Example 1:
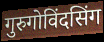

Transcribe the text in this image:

गुरुगोविंदसिंग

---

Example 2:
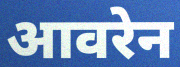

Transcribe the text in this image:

आवरेन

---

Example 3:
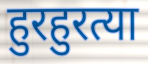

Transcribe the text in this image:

हुरहुरत्या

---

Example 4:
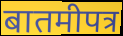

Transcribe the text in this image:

बातमीपत्र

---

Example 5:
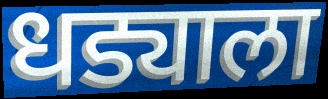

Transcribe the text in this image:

धड्याला